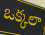
ఒక్కలా